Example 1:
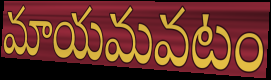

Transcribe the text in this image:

మాయమవటం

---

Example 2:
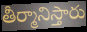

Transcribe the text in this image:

తీర్మానిస్తారు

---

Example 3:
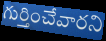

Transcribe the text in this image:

గుర్తించేవారని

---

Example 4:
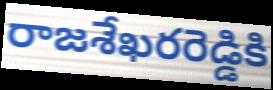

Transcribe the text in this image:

రాజశేఖరరెడ్డికి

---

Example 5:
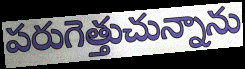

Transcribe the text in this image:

పరుగెత్తుచున్నాను